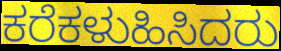
ಕರೆಕಳುಹಿಸಿದರು